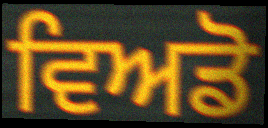
ਵਿਅਡੋ